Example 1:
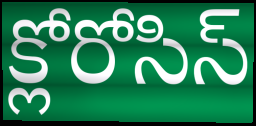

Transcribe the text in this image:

క్లోరోసిస్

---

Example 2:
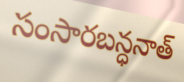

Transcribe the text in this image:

సంసారబన్ధనాత్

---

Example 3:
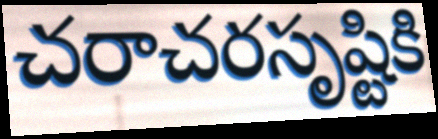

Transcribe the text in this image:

చరాచరసృష్టికి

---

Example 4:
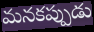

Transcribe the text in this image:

మనకప్పుడు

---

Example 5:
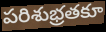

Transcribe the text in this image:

పరిశుభ్రతకూ